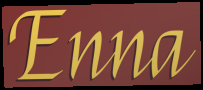
Enna